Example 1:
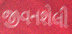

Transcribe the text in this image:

જીવનશેલી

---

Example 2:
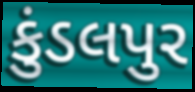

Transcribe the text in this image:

કુંડલપુર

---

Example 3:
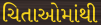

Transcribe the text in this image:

ચિતાઓમાંથી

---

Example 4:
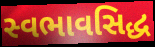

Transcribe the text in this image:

સ્વભાવસિદ્ધ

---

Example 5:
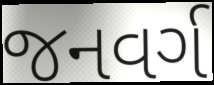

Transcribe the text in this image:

જનવર્ગ